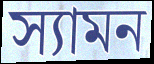
স্যামন